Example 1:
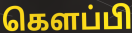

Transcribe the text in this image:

கெளப்பி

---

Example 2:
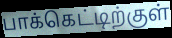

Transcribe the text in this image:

பாக்கெட்டிற்குள்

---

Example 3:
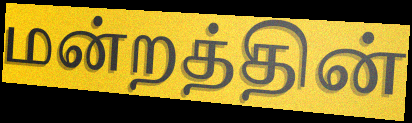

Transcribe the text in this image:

மன்றத்தின்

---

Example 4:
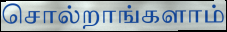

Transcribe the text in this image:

சொல்றாங்களாம்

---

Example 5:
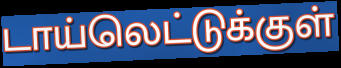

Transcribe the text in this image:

டாய்லெட்டுக்குள்